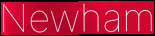
Newham